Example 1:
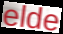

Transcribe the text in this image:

elde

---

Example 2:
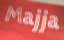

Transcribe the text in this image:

Majja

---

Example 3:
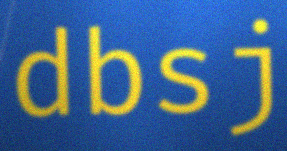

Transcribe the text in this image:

dbsj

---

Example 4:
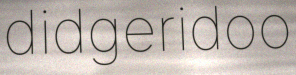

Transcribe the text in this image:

didgeridoo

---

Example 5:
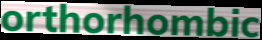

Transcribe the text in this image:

orthorhombic